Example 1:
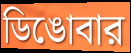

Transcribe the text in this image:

ডিঙোবার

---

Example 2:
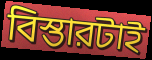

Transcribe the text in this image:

বিস্তারটাই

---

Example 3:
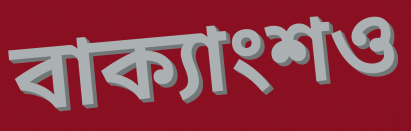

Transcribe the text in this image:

বাক্যাংশও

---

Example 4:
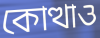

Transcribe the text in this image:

কোত্থাও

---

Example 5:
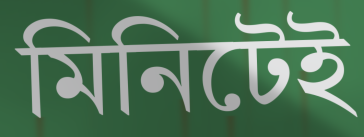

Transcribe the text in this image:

মিনিটেই